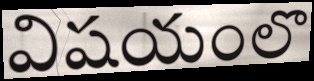
విషయంలొ